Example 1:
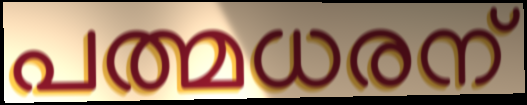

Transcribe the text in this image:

പത്മധരന്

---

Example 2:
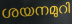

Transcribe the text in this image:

ശയനമുറി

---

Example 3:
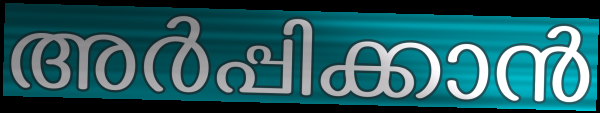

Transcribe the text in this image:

അർപ്പിക്കാൻ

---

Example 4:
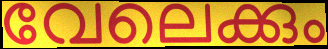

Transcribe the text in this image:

വേലെക്കും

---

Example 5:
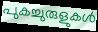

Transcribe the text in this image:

പുകച്ചുരുളുകൾ